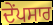
ਦੇਂਪਸਾਰ